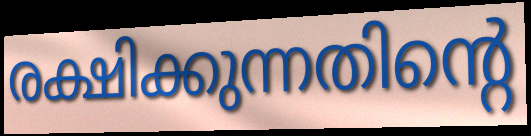
രക്ഷിക്കുന്നതിന്റെ